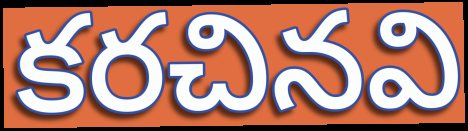
కరచినవి